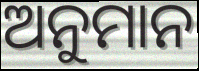
ଅନୁମାନ